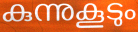
കുന്നുകൂടും